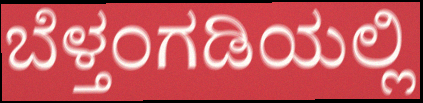
ಬೆಳ್ತಂಗಡಿಯಲ್ಲಿ